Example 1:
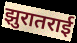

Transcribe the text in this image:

झुरातराई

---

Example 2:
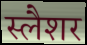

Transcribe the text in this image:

स्लैशर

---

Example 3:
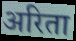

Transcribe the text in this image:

अरिता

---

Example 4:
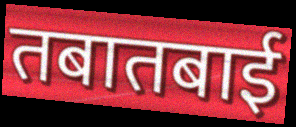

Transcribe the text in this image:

तबातबाई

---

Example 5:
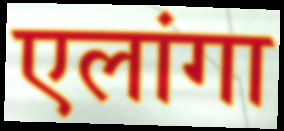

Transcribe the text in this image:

एलांगा